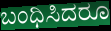
ಬಂಧಿಸಿದರೂ